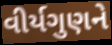
વીર્યગુણને